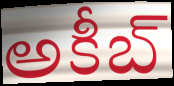
అకీబ్